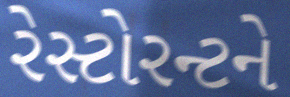
રેસ્ટોરન્ટને